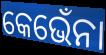
କେଭେଁନା